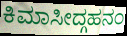
ಕಿಮಾಸೀದ್ಗಹನಂ